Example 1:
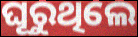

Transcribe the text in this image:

ଘୂରୁଥିଲେ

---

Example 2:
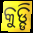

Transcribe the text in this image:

କୁଡ୍ଡି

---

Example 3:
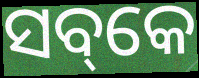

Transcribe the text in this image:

ସବ୍‌କେ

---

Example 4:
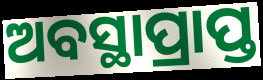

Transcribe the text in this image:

ଅବସ୍ଥାପ୍ରାପ୍ତ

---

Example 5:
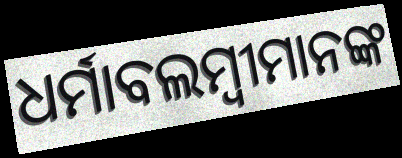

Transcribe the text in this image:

ଧର୍ମାବଲମ୍ବୀମାନଙ୍କ